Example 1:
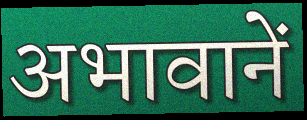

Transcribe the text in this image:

अभावानें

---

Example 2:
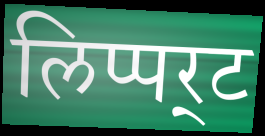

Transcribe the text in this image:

लिप्पर्ट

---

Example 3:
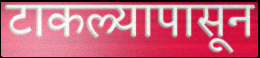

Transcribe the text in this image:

टाकल्यापासून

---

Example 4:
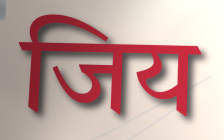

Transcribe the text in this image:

जिय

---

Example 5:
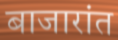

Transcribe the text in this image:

बाजारांत